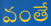
వంతే